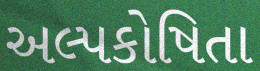
અલ્પકોષિતા